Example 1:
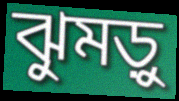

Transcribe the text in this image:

ঝুমড়ু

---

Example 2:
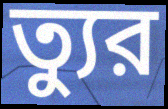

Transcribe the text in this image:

ত্যুর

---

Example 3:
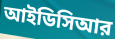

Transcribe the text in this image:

আইডিসিআর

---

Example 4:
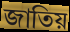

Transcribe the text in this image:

জাতিয়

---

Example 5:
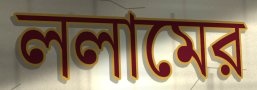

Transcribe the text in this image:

ললামের